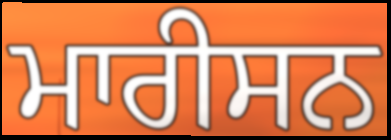
ਮਾਰੀਸਨ